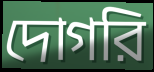
দোগরি